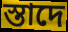
স্তাদে